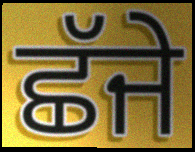
ਛੱਜੇ